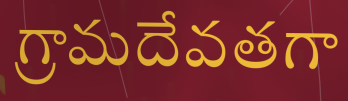
గ్రామదేవతగా